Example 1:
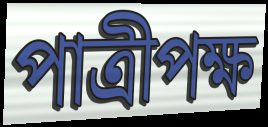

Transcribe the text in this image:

পাত্রীপক্ষ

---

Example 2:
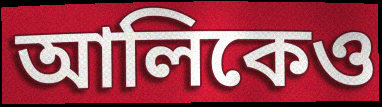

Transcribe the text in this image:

আলিকেও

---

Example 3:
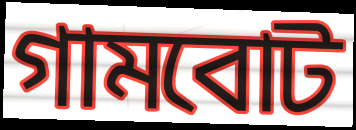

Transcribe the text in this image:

গামবোট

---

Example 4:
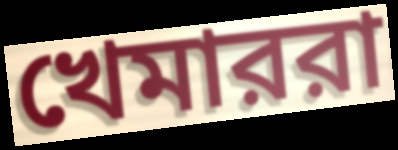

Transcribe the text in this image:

খেমাররা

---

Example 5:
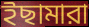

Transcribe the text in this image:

ইছামারা